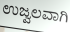
ಉಜ್ವಲವಾಗಿ